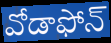
వోడాఫోన్